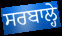
ਸਰਬਾਲ੍ਹੇ